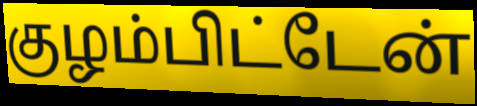
குழம்பிட்டேன்